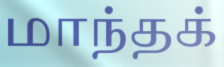
மாந்தக்